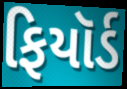
ફિયૉર્ડ